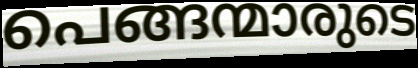
പെങ്ങന്മാരുടെ